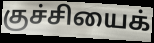
குச்சியைக்